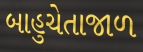
બાહુચેતાજાળ